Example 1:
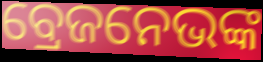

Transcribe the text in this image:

ବ୍ରେଜନେଭଙ୍କ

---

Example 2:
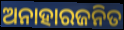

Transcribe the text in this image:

ଅନାହାରଜନିତ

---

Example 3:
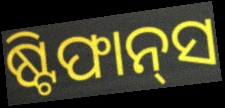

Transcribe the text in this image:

ଷ୍ଟିଫାନ୍‍ସ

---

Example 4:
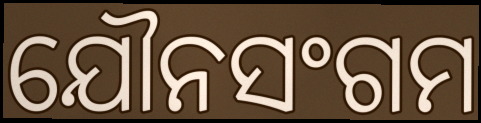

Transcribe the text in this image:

ଯୌନସଂଗମ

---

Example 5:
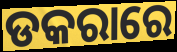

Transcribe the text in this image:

ଡକରାରେ